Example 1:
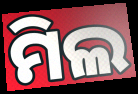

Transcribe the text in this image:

ମିଲ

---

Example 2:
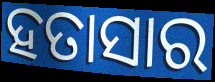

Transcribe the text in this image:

ହତାସାର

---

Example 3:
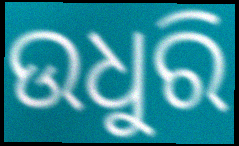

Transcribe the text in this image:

ଉଧୁରି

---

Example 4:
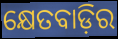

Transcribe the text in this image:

କ୍ଷେତବାଡ଼ିର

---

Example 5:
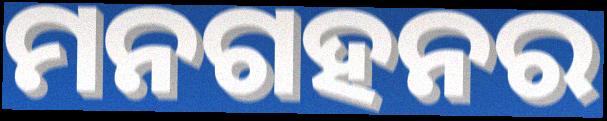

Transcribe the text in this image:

ମନଗହନର